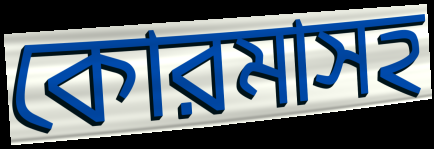
কোরমাসহ